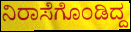
ನಿರಾಸೆಗೊಂಡಿದ್ದ